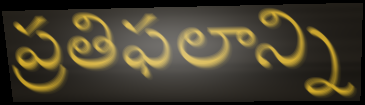
ప్రతిఫలాన్ని